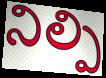
నిల్పి